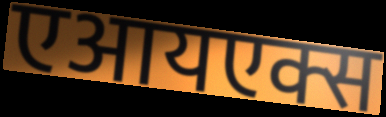
एआयएक्स